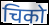
चिको